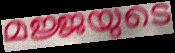
മജ്ജയുടെ